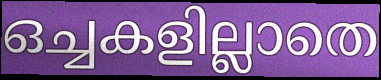
ഒച്ചകളില്ലാതെ